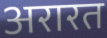
अरारत